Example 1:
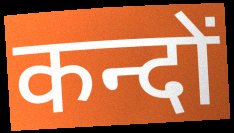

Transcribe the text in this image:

कन्दों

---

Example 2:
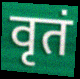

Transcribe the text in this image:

वृतं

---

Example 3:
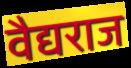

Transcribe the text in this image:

वैद्यराज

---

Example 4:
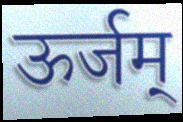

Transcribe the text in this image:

ऊर्जम्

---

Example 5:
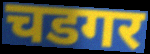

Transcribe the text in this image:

चडगर